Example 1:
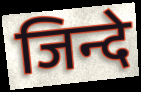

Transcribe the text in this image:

जिन्दे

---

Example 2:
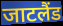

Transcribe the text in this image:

जाटलैंड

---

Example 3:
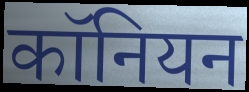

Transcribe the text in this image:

कॉनियन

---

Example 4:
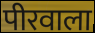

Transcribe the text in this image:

पीरवाला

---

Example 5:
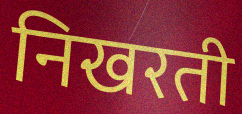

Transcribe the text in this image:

निखरती